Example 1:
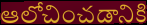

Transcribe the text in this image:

ఆలోచించడానికి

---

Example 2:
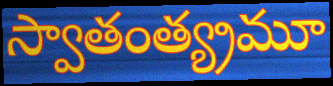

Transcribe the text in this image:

స్వాతంత్య్రమూ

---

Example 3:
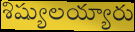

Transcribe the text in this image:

శిష్యులయ్యారు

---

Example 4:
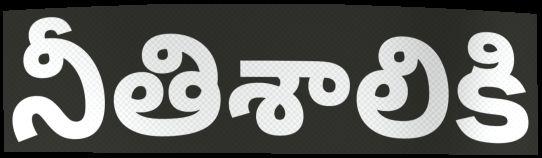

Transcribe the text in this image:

నీతిశాలికి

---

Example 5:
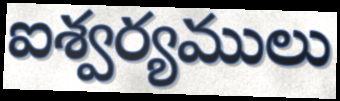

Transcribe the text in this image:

ఐశ్వర్యములు